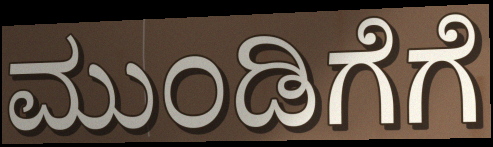
ಮುಂಡಿಗೆಗೆ